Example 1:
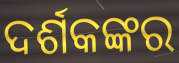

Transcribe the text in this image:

ଦର୍ଶକଙ୍କର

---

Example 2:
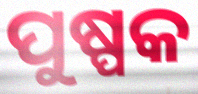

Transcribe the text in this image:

ପୁଷ୍ପକ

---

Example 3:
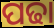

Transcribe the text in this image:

ପଢା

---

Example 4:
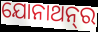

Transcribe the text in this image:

ଯୋନାଥନ୍‍ର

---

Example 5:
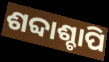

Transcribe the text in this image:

ଶବ୍ଦାଶ୍ଚାପି